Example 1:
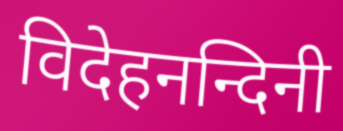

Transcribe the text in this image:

विदेहनन्दिनी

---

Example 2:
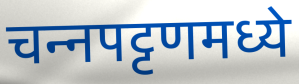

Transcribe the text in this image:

चन्नपट्टणमध्ये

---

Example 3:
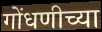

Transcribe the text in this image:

गोंधणीच्या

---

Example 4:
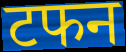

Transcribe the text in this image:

टफन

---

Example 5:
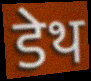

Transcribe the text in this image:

डेथ